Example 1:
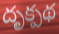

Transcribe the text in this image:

దృక్పథ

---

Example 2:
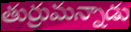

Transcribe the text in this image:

తుర్రుమన్నాడు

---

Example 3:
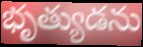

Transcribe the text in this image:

భృత్యుడను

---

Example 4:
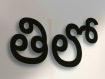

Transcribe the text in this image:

తిలో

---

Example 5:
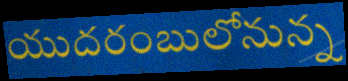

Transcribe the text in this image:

యుదరంబులోనున్న